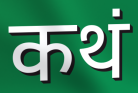
कथं